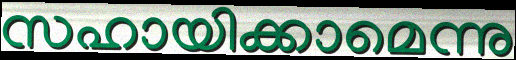
സഹായിക്കാമെന്നു